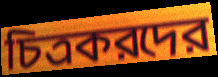
চিত্রকরদের